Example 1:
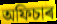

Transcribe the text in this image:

অফিচাৰ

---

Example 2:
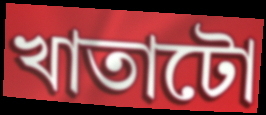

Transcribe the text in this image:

খাতাটো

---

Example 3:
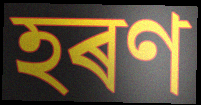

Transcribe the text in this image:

হৰণ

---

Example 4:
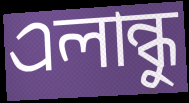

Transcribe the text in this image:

এলান্ধু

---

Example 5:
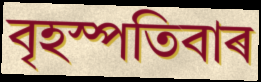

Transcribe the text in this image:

বৃহস্পতিবাৰ